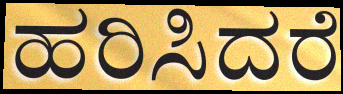
ಹರಿಸಿದರೆ